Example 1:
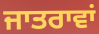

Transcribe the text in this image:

ਜਾਤਰਾਵਾਂ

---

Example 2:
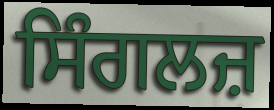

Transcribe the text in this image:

ਸਿੰਗਲਜ਼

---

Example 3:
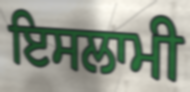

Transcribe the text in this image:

ਇਸਲਾਮੀ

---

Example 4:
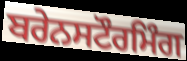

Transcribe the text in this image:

ਬਰੇਨਸਟੌਰਮਿੰਗ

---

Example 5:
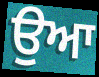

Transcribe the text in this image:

ਉਆ